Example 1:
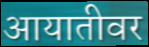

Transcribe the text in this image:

आयातीवर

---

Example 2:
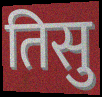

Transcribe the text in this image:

तिसु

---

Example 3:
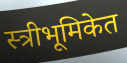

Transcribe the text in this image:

स्त्रीभूमिकेत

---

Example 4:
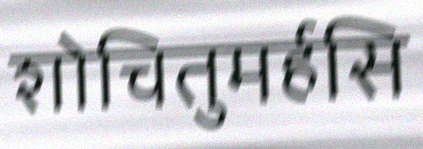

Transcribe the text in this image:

शोचितुमर्हसि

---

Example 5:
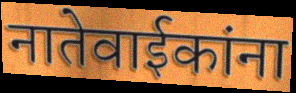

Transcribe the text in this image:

नातेवाईकांना